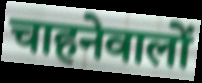
चाहनेवालों